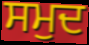
ਸਮੁਦ